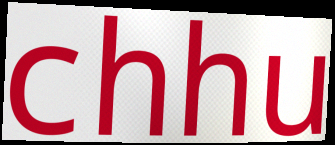
chhu